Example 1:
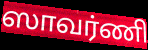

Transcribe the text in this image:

ஸாவர்ணி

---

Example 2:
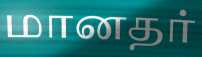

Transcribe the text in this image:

மானதர்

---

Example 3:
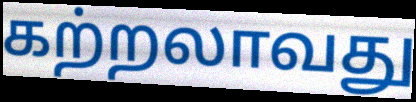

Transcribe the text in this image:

கற்றலாவது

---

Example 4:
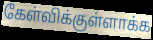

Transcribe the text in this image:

கேள்விக்குள்ளாக்க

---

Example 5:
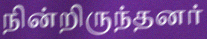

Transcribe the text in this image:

நின்றிருந்தனர்